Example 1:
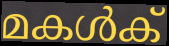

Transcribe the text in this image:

മകൾക്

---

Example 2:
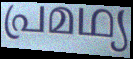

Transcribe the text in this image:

പ്രമഥ്യ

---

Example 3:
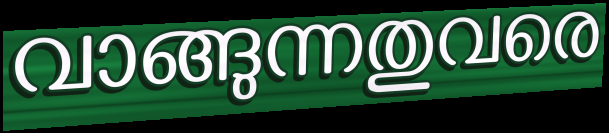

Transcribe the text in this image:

വാങ്ങുന്നതുവരെ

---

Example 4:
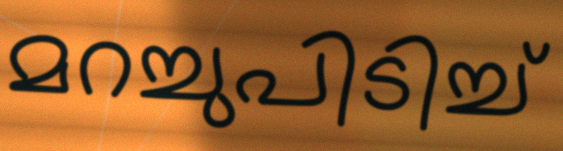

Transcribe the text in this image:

മറച്ചുപിടിച്ച്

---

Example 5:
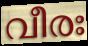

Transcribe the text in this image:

വീരഃ